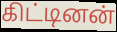
கிட்டினன்